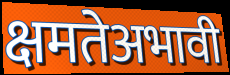
क्षमतेअभावी